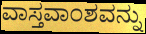
ವಾಸ್ತವಾಂಶವನ್ನು